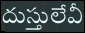
దుస్తులేవీ